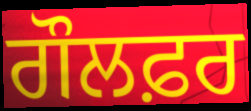
ਗੌਲਫ਼ਰ